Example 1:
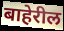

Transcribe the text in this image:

बाहेरील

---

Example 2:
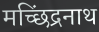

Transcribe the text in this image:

मच्छिंद्रनाथ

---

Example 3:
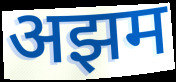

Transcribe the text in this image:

अझम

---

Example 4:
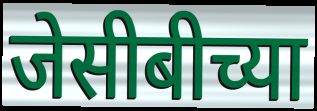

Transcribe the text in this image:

जेसीबीच्या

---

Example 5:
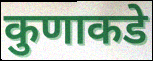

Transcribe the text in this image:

कुणाकडे